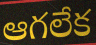
ఆగలేక